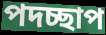
পদচ্ছাপ